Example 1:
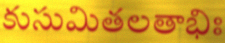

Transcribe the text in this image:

కుసుమితలతాభిః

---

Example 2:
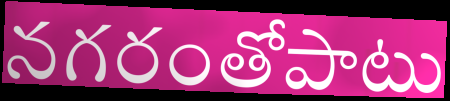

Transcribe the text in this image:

నగరంతోపాటు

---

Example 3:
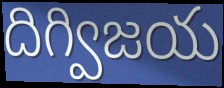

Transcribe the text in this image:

దిగ్విజయ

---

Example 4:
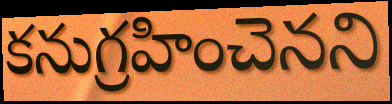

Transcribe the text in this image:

కనుగ్రహించెనని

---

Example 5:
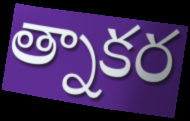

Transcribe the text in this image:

త్నాకర